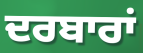
ਦਰਬਾਰਾਂ